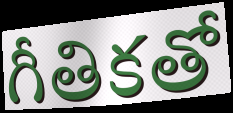
గీతికతో